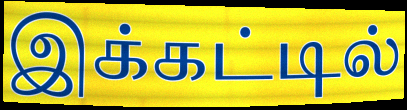
இக்கட்டில்